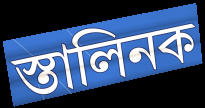
স্তালিনক